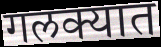
गलक्यात